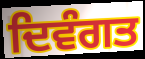
ਦਿਵੰਗਤ